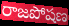
రాజపోషణ